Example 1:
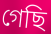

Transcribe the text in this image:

গেছি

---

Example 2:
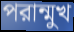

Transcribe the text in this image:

পরান্মুখ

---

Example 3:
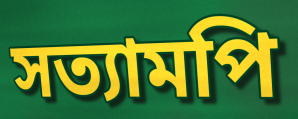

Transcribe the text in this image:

সত্যামপি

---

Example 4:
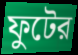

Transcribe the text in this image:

ফুটের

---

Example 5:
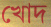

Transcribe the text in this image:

খোদ